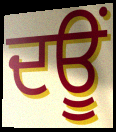
ਦਊਂ